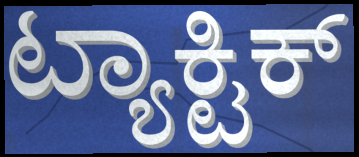
ಟ್ಯಾಕ್ಟಿಕ್